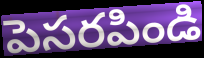
పెసరపిండి